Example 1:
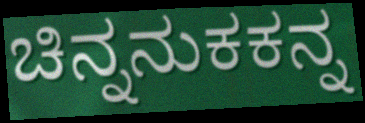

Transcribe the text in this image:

ಚಿನ್ನನುಕಕನ್ನ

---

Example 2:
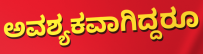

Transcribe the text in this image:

ಅವಶ್ಯಕವಾಗಿದ್ದರೂ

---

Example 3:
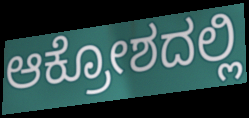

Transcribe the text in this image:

ಆಕ್ರೋಶದಲ್ಲಿ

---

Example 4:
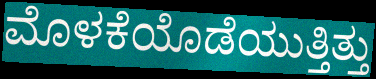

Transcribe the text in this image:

ಮೊಳಕೆಯೊಡೆಯುತ್ತಿತ್ತು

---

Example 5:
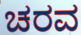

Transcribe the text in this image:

ಚರವ